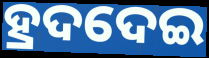
ହ୍ରଦଦେଇ